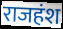
राजहंश